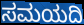
ಸಮಯದಿ